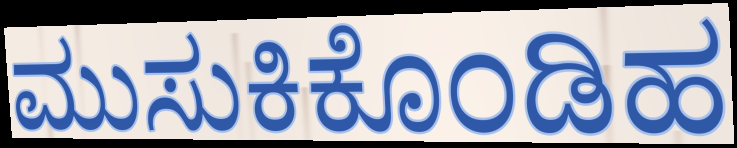
ಮುಸುಕಿಕೊಂಡಿಹ